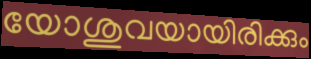
യോശുവയായിരിക്കും